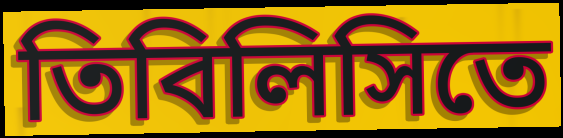
তিবিলিসিতে